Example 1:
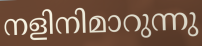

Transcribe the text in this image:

നളിനിമാറുന്നു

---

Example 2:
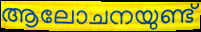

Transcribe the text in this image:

ആലോചനയുണ്ട്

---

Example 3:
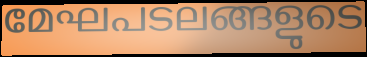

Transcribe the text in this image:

മേഘപടലങ്ങളുടെ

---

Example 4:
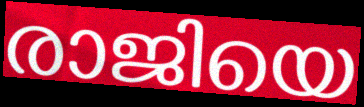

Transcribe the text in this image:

രാജിയെ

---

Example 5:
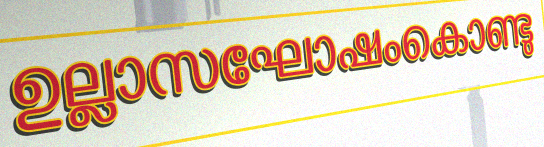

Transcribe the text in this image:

ഉല്ലാസഘോഷംകൊണ്ടു